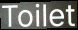
Toilet